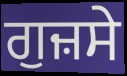
ਗੁਜ਼ਸੇ